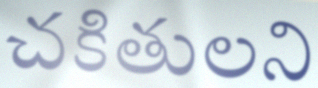
చకితులని